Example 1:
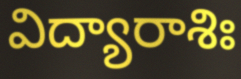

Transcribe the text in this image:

విద్యారాశిః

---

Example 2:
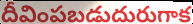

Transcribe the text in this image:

దీవింపబడుదురుగాక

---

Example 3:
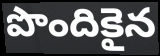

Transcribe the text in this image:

పొందికైన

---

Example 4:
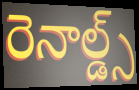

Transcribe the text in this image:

రెనాల్డ్స్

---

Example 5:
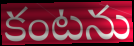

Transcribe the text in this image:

కంటను